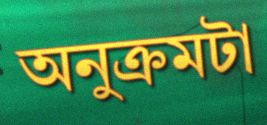
অনুক্রমটা